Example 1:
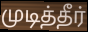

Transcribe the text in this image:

முடித்தீர்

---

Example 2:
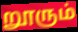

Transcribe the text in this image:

றூரும்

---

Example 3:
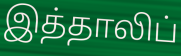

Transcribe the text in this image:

இத்தாலிப்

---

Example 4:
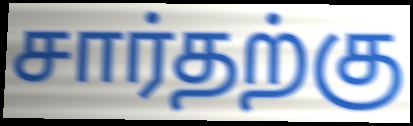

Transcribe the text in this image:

சார்தற்கு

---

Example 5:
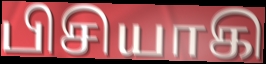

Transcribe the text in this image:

பிசியாகி